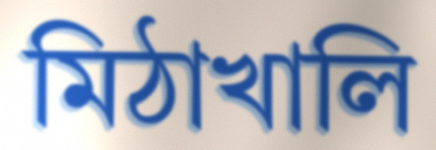
মিঠাখালি